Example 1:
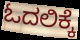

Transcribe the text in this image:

ಓದಲಿಕ್ಕೆ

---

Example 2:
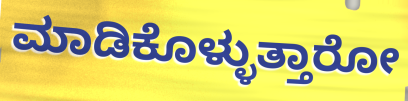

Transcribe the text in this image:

ಮಾಡಿಕೊಳ್ಳುತ್ತಾರೋ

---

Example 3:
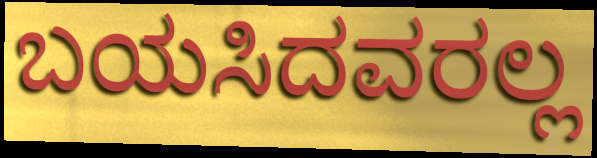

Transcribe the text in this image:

ಬಯಸಿದವರಲ್ಲ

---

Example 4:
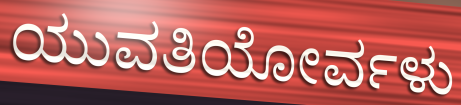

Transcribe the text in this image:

ಯುವತಿಯೋರ್ವಳು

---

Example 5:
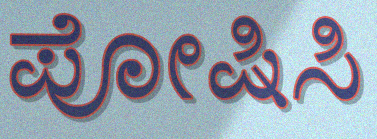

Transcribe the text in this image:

ಪೋಷಿಸಿ